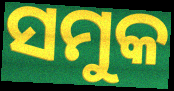
ସମୁକ